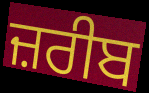
ਜ਼ਰੀਬ